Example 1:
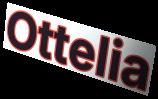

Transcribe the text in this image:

Ottelia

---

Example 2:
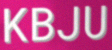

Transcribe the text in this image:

KBJU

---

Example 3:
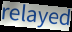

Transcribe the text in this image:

relayed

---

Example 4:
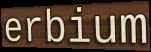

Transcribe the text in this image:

erbium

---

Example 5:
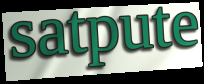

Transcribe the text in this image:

satpute